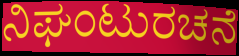
ನಿಘಂಟುರಚನೆ